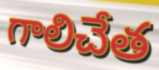
గాలిచేత